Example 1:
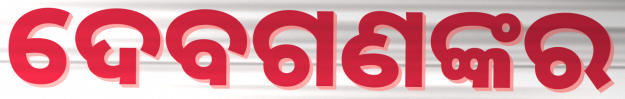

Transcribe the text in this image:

ଦେବଗଣଙ୍କର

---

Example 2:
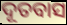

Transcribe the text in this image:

ଦୂତବାସ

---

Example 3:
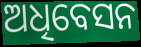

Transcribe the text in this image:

ଅଧିବେସନ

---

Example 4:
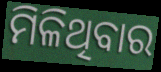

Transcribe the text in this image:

ମିଳିଥିବାର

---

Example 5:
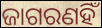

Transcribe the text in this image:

ଜାଗରଣହିଁ